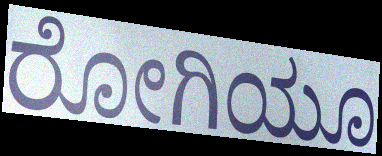
ರೋಗಿಯೂ